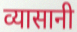
व्यासानी